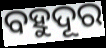
ବହୁଦୂର